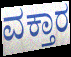
ವಕ್ತಾರ